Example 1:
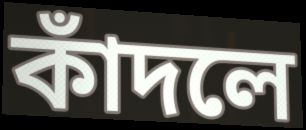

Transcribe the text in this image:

কাঁদলে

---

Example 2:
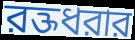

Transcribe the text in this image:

রক্তধরার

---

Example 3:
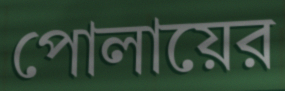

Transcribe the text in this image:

পোলায়ের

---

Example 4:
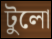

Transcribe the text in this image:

টুলো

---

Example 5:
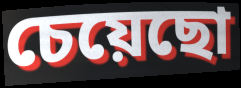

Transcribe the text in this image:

চেয়েছো